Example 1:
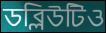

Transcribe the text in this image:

ডব্লিউটিও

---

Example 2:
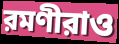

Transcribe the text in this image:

রমণীরাও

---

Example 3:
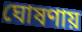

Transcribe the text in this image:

ঘোষণায়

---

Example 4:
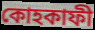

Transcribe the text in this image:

কোহকাফী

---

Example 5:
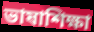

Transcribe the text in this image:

ভাষাশিক্ষা